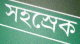
সহস্রেক